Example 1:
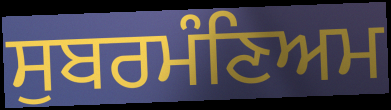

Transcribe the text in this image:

ਸੁਬਰਮੰਣਿਅਮ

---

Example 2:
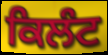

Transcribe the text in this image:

ਕਿਲੰਟ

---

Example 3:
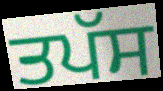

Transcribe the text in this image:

ਤਪੱਸ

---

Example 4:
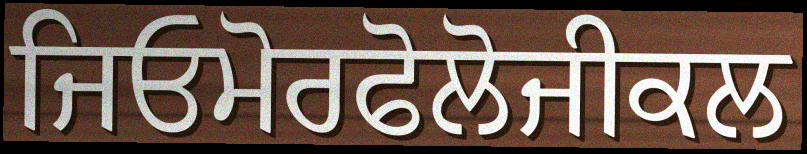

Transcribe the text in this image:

ਜਿਓਮੋਰਫੋਲੋਜੀਕਲ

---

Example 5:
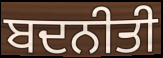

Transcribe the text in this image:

ਬਦਨੀਤੀ